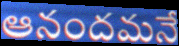
ఆనందమనే